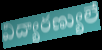
విద్యారణ్యులే